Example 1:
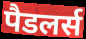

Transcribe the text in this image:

पैडलर्स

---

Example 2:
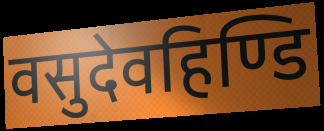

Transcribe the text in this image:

वसुदेवहिण्डि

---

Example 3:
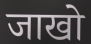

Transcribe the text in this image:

जाखो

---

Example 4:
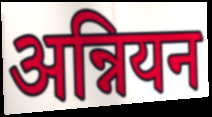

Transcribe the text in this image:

अन्नियन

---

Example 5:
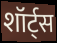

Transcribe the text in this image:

शॉर्ट्स